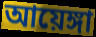
আয়েঙ্গা